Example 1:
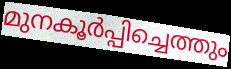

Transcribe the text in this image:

മുനകൂർപ്പിച്ചെത്തും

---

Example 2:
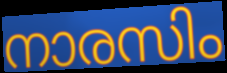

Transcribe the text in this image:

നാരസിം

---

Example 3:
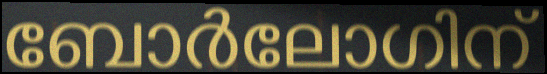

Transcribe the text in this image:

ബോർലോഗിന്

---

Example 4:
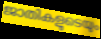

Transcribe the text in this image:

ജാതികളുടെയും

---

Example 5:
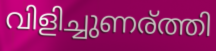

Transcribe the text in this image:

വിളിച്ചുണര്ത്തി